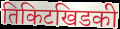
तिकिटखिडकी